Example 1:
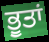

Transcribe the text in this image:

ਭੂਤਾਂ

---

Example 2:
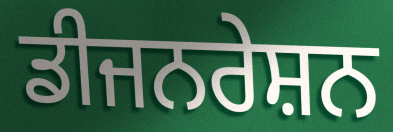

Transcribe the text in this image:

ਡੀਜਨਰੇਸ਼ਨ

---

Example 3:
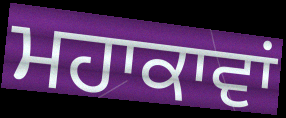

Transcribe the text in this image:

ਮਹਾਕਾਵਾਂ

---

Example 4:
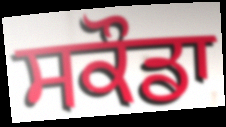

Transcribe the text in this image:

ਸਕੌਡਾ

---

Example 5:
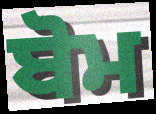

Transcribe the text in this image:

ਬੋਮ